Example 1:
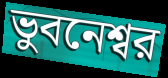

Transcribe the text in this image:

ভুবনেশ্বর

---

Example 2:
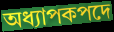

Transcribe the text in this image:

অধ্যাপকপদে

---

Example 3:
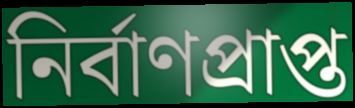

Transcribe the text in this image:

নির্বাণপ্রাপ্ত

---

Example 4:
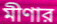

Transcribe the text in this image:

মীণার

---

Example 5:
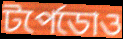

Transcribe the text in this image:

টর্পেডোও